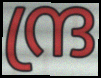
ന്ദ്ര